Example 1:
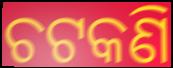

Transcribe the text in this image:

ଚଟକଣି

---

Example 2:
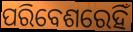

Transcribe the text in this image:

ପରିବେଶରେହିଁ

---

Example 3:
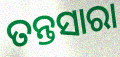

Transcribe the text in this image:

ତନ୍ତସାରା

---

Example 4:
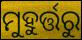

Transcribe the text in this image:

ମୁହୁର୍ତ୍ତରୁ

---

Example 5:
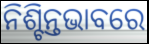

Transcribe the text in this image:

ନିଶ୍ଚିନ୍ତଭାବରେ